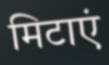
मिटाएं